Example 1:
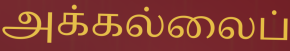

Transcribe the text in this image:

அக்கல்லைப்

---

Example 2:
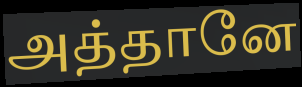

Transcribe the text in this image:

அத்தானே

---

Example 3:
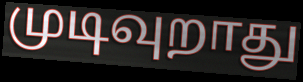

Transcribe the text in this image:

முடிவுறாது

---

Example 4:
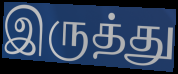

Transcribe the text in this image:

இருத்து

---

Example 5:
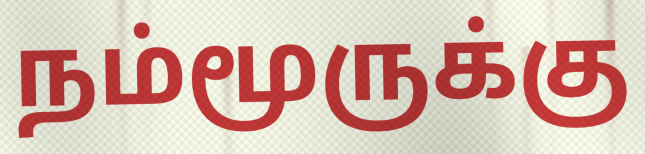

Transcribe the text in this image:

நம்மூருக்கு